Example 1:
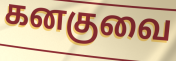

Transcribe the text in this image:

கனகுவை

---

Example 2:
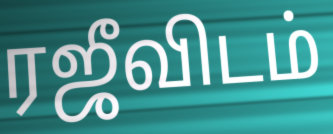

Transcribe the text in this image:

ரஜீவிடம்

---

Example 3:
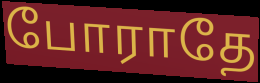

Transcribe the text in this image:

போராதே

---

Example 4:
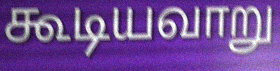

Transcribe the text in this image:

கூடியவாறு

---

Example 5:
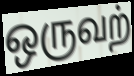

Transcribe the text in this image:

ஒருவற்